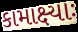
કામાક્ષ્યાઃ